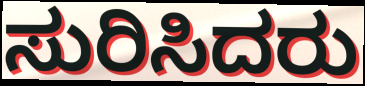
ಸುರಿಸಿದರು